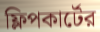
ফ্লিপকার্টের